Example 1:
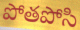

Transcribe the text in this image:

పోతపోసి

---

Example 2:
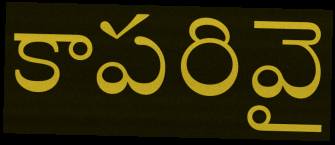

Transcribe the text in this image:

కాపరివై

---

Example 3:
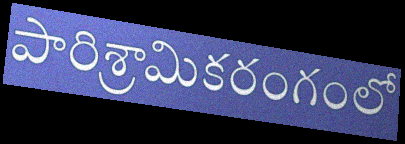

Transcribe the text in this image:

పారిశ్రామికరంగంలో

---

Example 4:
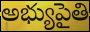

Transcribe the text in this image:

అభ్యుపైతి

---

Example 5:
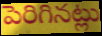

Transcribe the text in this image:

పెరిగినట్లు